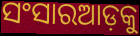
ସଂସାରଆଡ଼କୁ